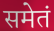
समेतं